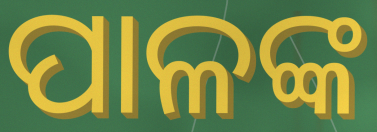
ପାଳଙ୍କ